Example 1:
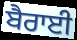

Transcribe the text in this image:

ਬੈਰਾਈ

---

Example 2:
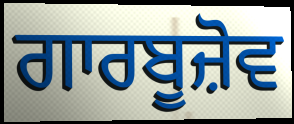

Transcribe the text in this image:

ਗਾਰਬੂਜ਼ੋਵ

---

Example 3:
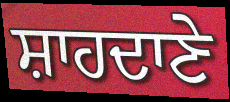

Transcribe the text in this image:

ਸ਼ਾਹਦਾਣੇ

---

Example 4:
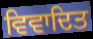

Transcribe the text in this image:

ਵਿਵਾਦਿਤ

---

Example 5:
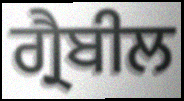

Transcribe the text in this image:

ਗ੍ਰੈਬੀਲ